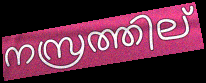
നസ്രത്തില്